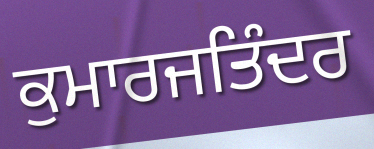
ਕੁਮਾਰਜਤਿੰਦਰ